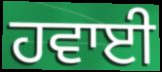
ਹਵਾਈ